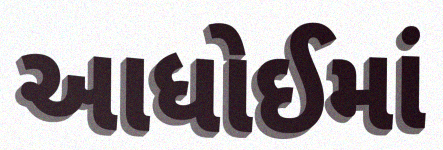
આધોઈમાં